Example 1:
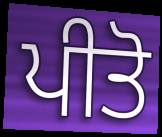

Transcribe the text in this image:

ਪੀਤੋ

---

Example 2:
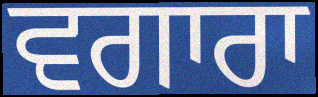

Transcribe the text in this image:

ਵਗਾਰਾ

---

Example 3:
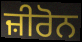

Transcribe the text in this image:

ਜ਼ੀਰੋਨ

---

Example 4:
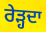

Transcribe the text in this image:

ਰੇੜ੍ਹਦਾ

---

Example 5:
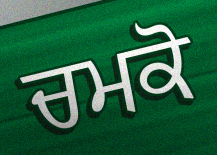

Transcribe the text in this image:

ਚਮਕੋ